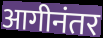
आगीनंतर